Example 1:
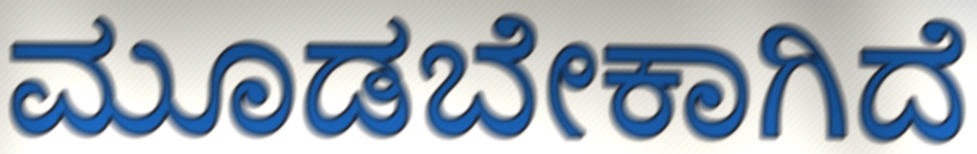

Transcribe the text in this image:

ಮೂಡಬೇಕಾಗಿದೆ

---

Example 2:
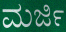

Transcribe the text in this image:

ಮರ್ಜಿ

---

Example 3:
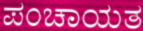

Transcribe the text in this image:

ಪಂಚಾಯತ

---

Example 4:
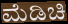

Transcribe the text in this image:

ಮೆಡಿಚಿ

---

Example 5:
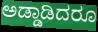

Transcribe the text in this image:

ಅಡ್ಡಾಡಿದರೂ